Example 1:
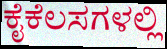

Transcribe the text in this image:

ಕೈಕೆಲಸಗಳಲ್ಲಿ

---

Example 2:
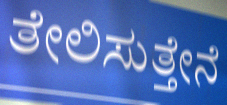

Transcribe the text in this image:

ತೇಲಿಸುತ್ತೇನೆ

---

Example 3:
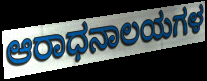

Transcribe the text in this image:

ಆರಾಧನಾಲಯಗಳ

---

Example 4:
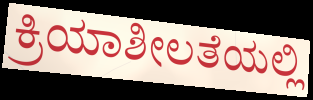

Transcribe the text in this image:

ಕ್ರಿಯಾಶೀಲತೆಯಲ್ಲಿ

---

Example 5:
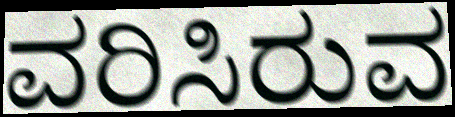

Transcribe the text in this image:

ವರಿಸಿರುವ